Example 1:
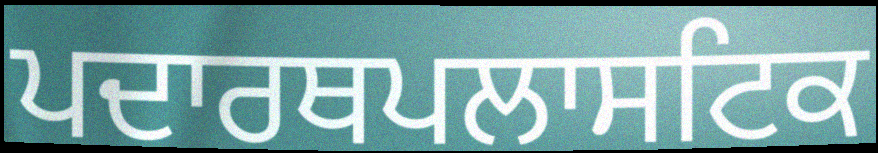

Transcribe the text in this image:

ਪਦਾਰਥਪਲਾਸਟਿਕ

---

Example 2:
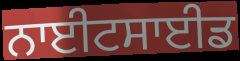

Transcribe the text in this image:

ਨਾਈਟਸਾਈਡ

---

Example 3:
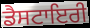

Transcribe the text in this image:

ਡੈਸਟਾਇਰੀ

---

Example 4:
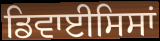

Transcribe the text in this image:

ਡਿਵਾਈਸਿਸਾਂ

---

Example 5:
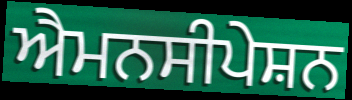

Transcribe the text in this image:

ਐਮਨਸੀਪੇਸ਼ਨ